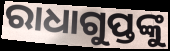
ରାଧାଗୁପ୍ତଙ୍କୁ